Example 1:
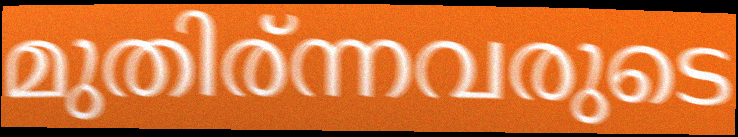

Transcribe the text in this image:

മുതിര്ന്നവരുടെ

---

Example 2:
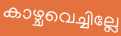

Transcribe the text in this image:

കാഴ്ചവെച്ചില്ലേ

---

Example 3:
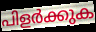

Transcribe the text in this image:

പിളർക്കുക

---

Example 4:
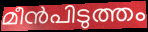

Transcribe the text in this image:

മീൻപിടുത്തം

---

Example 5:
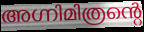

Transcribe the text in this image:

അഗ്നിമിത്രന്റെ